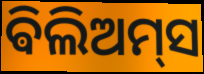
ଵିଲିଅମ୍‌ସ